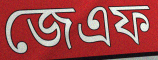
জেএফ